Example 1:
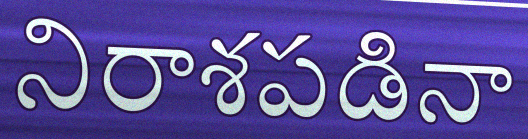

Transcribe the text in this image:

నిరాశపడినా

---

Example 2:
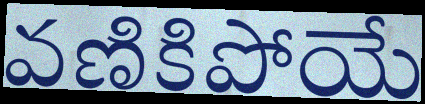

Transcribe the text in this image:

వణికిపోయే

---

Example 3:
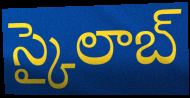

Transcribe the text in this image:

స్కైలాబ్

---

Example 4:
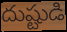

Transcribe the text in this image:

దుష్టుడి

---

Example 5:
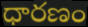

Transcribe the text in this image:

ధారణం